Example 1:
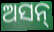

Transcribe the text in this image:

ଅସନ୍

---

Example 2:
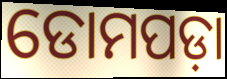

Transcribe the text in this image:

ଡୋମପଡ଼ା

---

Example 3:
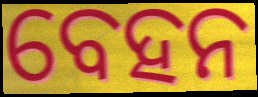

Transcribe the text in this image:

ବେହନ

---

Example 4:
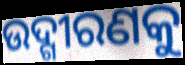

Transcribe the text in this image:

ଉଦ୍ଗୀରଣକୁ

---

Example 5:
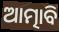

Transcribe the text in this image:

ଆତ୍ମାବି